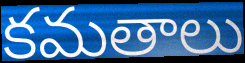
కమతాలు